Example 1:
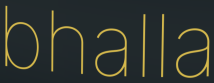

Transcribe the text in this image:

bhalla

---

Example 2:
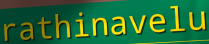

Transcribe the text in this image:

rathinavelu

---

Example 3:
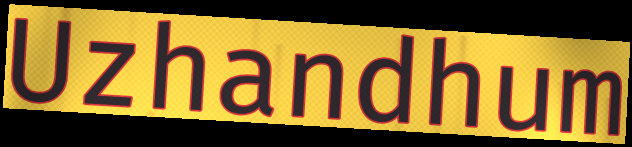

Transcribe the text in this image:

Uzhandhum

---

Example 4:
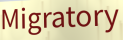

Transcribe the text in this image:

Migratory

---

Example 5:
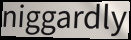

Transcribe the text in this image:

niggardly